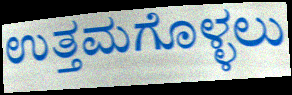
ಉತ್ತಮಗೊಳ್ಳಲು